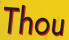
Thou